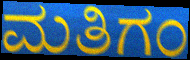
ಮತಿಗಂ